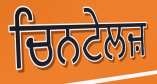
ਚਿਨਟੇਲਜ਼